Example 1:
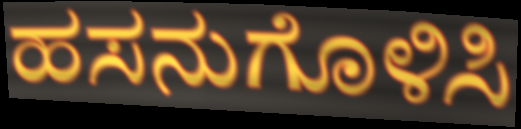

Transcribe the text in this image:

ಹಸನುಗೊಳಿಸಿ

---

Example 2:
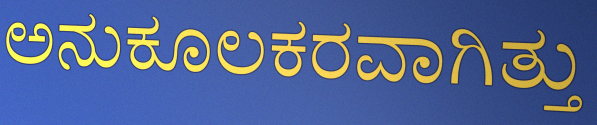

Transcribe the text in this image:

ಅನುಕೂಲಕರವಾಗಿತ್ತು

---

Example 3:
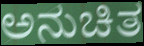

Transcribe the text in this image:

ಅನುಚಿತ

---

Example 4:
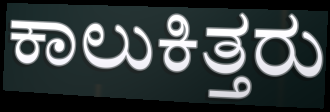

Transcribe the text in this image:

ಕಾಲುಕಿತ್ತರು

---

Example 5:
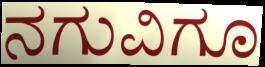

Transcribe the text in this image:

ನಗುವಿಗೂ